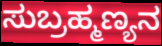
ಸುಬ್ರಹ್ಮಣ್ಯನ